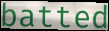
batted